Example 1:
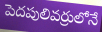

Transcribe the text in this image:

పెదపులివర్రులోనే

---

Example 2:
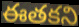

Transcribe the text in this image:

ఈతకని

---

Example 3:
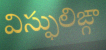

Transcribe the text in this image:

విస్ఫులిఙ్గా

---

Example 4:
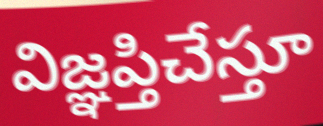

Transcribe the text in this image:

విజ్ఞప్తిచేస్తూ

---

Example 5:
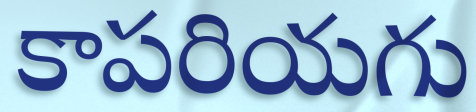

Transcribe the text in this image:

కాపరియగు